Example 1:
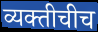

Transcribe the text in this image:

व्यक्तीचीच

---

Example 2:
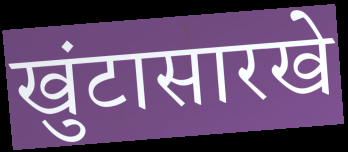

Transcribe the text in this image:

खुंटासारखे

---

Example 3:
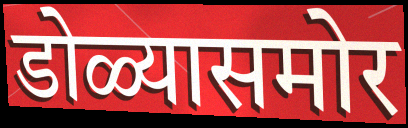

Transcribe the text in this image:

डोळ्यासमोर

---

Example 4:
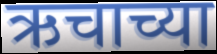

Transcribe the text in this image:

ऋचाच्या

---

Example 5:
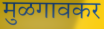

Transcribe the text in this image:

मुळगावकर